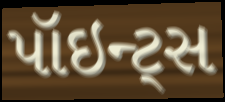
પૉઇન્ટ્સ